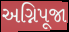
અગ્નિપૂજા